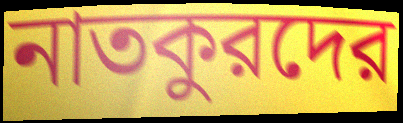
নাতকুরদের